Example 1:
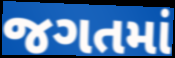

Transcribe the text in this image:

જગતમાં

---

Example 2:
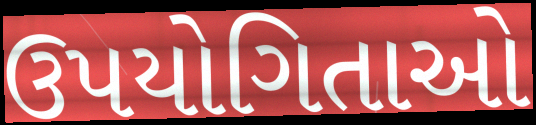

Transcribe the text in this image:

ઉપયોગિતાઓ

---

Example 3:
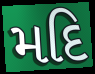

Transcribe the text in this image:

મદિ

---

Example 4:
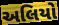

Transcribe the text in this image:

અલિયો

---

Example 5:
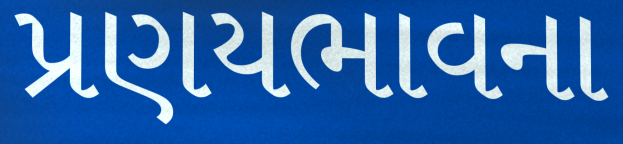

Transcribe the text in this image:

પ્રણયભાવના